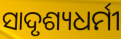
ସାଦୃଶ୍ୟଧର୍ମୀ